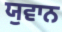
ਯੁਵਾਨ